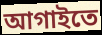
আগাইতে